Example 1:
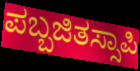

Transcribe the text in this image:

ಪಬ್ಬಜಿತಸ್ಸಾಪಿ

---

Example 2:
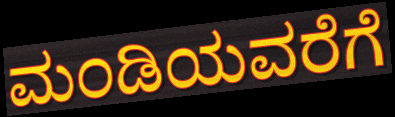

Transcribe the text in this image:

ಮಂಡಿಯವರೆಗೆ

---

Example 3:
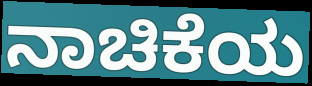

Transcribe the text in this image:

ನಾಚಿಕೆಯ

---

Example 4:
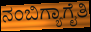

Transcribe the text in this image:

ನಂಬಿಗ್ಯಾಗೈತಿ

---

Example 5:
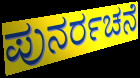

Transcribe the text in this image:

ಪುನರ್ರಚನೆ